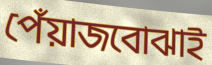
পেঁয়াজবোঝাই